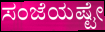
ಸಂಜೆಯಷ್ಟೇ